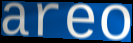
areo